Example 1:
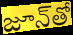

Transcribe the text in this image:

జూన్‌తో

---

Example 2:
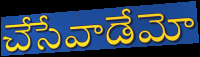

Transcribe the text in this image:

చేసేవాడేమో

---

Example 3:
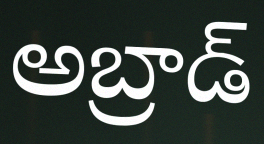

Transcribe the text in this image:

అబ్రాడ్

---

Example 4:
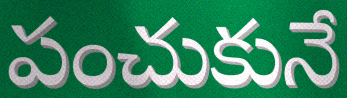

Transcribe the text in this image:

పంచుకునే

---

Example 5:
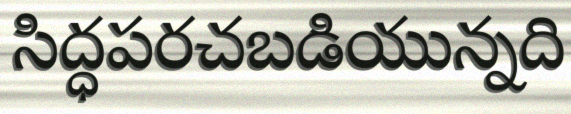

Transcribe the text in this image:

సిద్ధపరచబడియున్నది